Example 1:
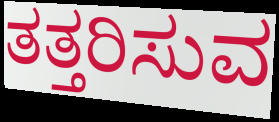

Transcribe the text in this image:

ತತ್ತರಿಸುವ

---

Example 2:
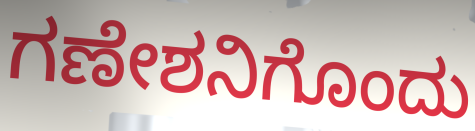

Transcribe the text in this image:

ಗಣೇಶನಿಗೊಂದು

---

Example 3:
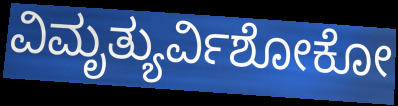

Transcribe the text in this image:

ವಿಮೃತ್ಯುರ್ವಿಶೋಕೋ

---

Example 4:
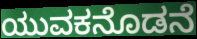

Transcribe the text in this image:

ಯುವಕನೊಡನೆ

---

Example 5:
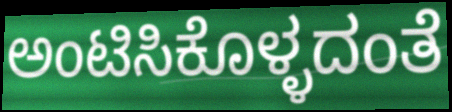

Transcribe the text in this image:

ಅಂಟಿಸಿಕೊಳ್ಳದಂತೆ